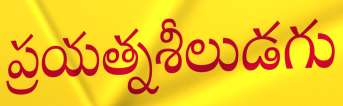
ప్రయత్నశీలుడగు